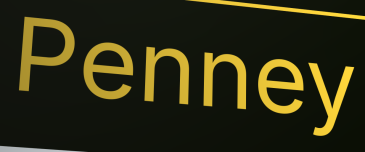
Penney